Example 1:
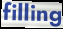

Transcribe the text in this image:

filling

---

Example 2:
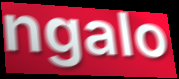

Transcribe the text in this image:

ngalo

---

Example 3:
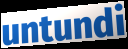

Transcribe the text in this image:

untundi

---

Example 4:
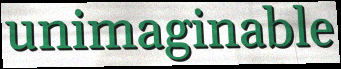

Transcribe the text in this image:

unimaginable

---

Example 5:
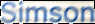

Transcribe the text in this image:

Simson